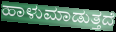
ಹಾಳುಮಾಡುತ್ತದೆ